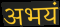
अभयं